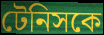
টেনিসকে